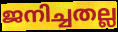
ജനിച്ചതല്ല